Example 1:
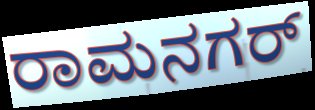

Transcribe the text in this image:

ರಾಮನಗರ್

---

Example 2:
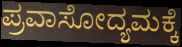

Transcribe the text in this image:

ಪ್ರವಾಸೋದ್ಯಮಕ್ಕೆ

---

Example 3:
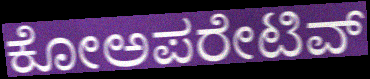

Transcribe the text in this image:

ಕೋಅಪರೇಟಿವ್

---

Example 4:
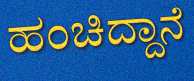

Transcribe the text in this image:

ಹಂಚಿದ್ದಾನೆ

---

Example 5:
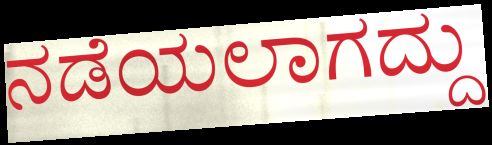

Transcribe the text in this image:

ನಡೆಯಲಾಗದ್ದು